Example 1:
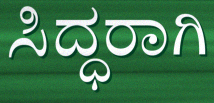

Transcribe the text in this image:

ಸಿದ್ಧರಾಗಿ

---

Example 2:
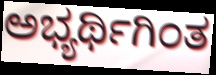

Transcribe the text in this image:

ಅಭ್ಯರ್ಥಿಗಿಂತ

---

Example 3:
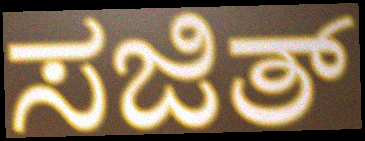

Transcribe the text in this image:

ಸಜಿತ್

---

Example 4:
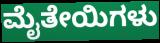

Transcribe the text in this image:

ಮೈತೇಯಿಗಳು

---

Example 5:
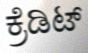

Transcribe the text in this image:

ಕ್ರೆಡಿಟ್